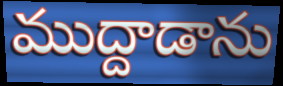
ముద్దాడాను